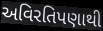
અવિરતિપણાથી